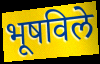
भूषविले